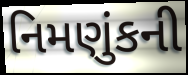
નિમણુંકની